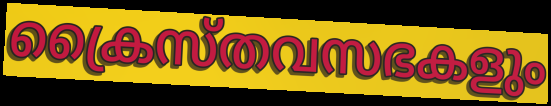
ക്രൈസ്തവസഭകളും